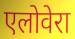
एलोवेरा